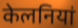
केलनियां